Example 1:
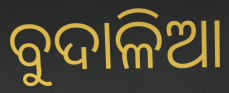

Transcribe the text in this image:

ବୁଦାଳିଆ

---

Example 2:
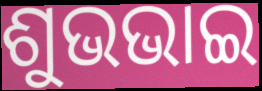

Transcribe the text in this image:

ଶୁଭଭାଇ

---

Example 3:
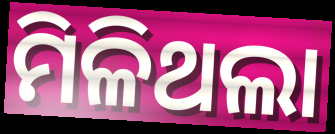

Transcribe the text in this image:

ମିଳିଥଲା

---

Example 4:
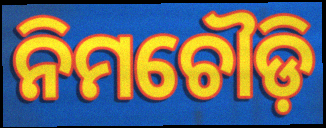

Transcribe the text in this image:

ନିମଚୌଡ଼ି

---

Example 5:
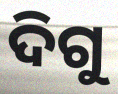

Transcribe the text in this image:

ଦିଗୁ